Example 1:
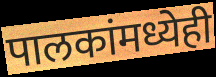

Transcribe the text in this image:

पालकांमध्येही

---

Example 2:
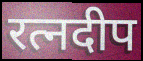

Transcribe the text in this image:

रत्नदीप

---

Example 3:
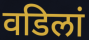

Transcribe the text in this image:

वडिलां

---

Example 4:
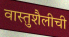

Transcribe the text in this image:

वास्तुशैलीची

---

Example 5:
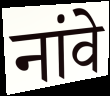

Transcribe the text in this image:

नांवे